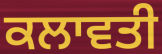
ਕਲਾਵਤੀ